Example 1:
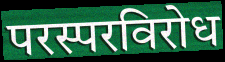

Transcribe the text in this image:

परस्परविरोध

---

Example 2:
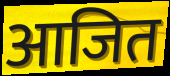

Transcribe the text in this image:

आजित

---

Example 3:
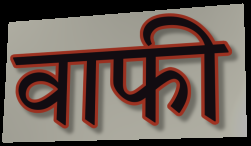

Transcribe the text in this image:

वाफी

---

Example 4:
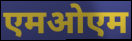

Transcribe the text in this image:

एमओएम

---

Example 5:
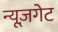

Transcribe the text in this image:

न्यूज़गेट